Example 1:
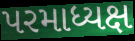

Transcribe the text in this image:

પરમાધ્યક્ષ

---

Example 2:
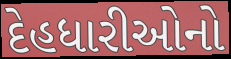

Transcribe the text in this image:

દેહધારીઓનો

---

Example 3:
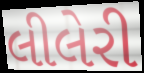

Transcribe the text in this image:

લીલેરી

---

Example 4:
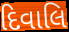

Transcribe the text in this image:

દિવાલિ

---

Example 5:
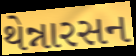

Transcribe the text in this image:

થેન્નારસન